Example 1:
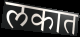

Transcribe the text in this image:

लकात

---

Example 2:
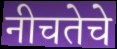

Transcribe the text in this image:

नीचतेचे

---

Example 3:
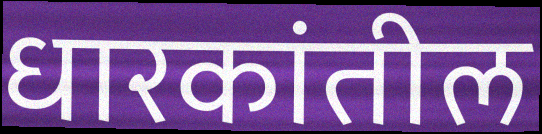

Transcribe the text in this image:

धारकांतील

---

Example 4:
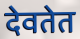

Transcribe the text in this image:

देवतेत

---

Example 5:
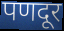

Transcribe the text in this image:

पणदूर